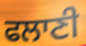
ਫਲਾਣੀ